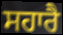
ਸਹਾਰੈ